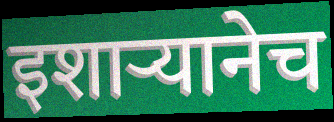
इशाऱ्यानेच